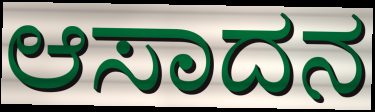
ಆಸಾದನ